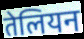
तेलियन